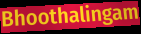
Bhoothalingam